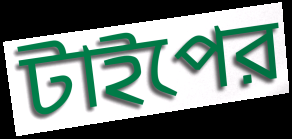
টাইপের